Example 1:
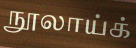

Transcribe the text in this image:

நூலாய்க்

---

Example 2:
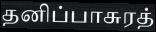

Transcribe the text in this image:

தனிப்பாசுரத்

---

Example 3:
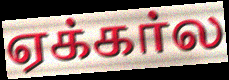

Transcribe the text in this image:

ஏக்கர்ல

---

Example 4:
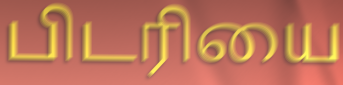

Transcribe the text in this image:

பிடரியை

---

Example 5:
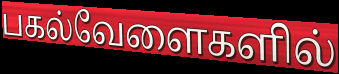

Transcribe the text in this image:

பகல்வேளைகளில்